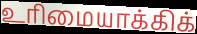
உரிமையாக்கிக்